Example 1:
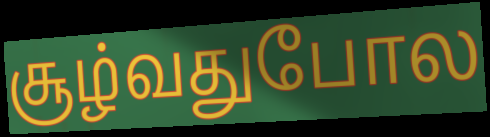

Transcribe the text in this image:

சூழ்வதுபோல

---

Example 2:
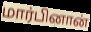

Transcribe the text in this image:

மார்பினான்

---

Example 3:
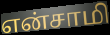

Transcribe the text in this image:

என்சாமி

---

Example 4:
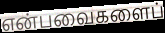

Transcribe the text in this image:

என்பவைகளைப்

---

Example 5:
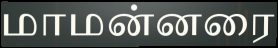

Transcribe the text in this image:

மாமன்னரை